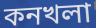
কনখলা